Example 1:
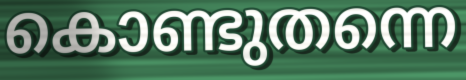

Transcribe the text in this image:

കൊണ്ടുതന്നെ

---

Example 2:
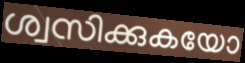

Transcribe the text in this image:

ശ്വസിക്കുകയോ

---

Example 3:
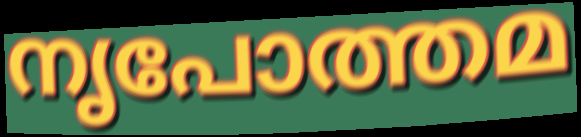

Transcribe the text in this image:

നൃപോത്തമ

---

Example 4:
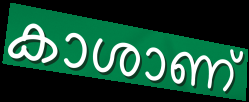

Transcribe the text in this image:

കാശാണ്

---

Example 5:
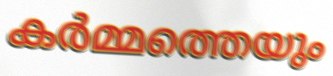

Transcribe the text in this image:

കർമ്മത്തെയും